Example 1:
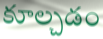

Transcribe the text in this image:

కూల్చడం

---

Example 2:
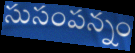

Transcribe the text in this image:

సుసంపన్నం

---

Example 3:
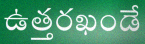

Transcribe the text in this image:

ఉత్తరఖండే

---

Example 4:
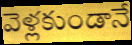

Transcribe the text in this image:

వెళ్లకుండానే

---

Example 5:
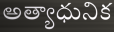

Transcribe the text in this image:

అత్యాధునిక